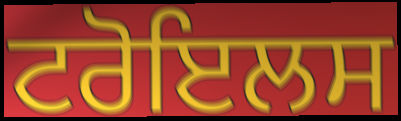
ਟਰੋਇਲਸ